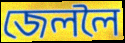
জেললৈ